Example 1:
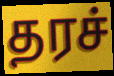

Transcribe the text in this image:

தரச்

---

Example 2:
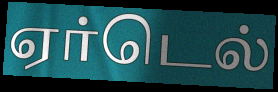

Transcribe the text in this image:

ஏர்டெல்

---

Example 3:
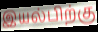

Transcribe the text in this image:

இயல்பிற்கு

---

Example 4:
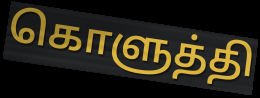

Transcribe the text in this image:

கொளுத்தி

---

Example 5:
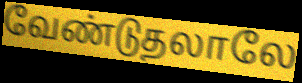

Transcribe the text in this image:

வேண்டுதலாலே